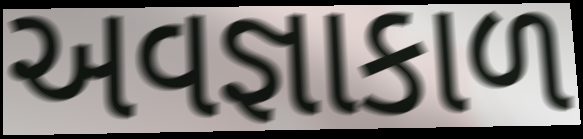
અવજ્ઞાકાળ